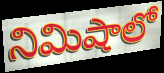
నిమిషాలో